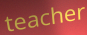
teacher